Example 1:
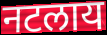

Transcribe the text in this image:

नटलाय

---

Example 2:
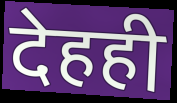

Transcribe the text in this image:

देहही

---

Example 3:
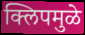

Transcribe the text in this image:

क्लिपमुळे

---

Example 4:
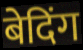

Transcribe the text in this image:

बेदिंग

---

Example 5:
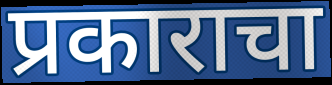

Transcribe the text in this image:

प्रकाराचा